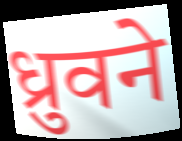
ध्रुवने